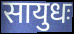
सायुधः